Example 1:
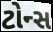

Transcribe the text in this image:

ટોન્સ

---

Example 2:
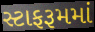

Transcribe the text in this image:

સ્ટાફરૂમમાં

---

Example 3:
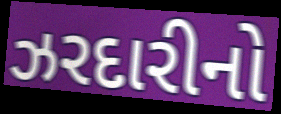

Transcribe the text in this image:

ઝરદારીનો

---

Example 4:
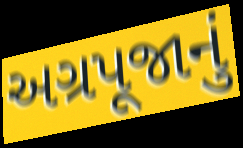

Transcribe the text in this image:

અગ્રપૂજાનું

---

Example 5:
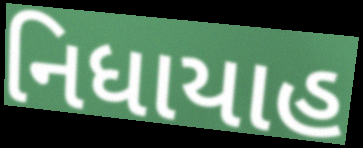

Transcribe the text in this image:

નિધાયાહ